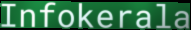
Infokerala